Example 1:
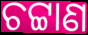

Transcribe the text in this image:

ଚଟ୍ଟାଣ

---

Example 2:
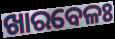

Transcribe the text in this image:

ଖାରବେଳଃ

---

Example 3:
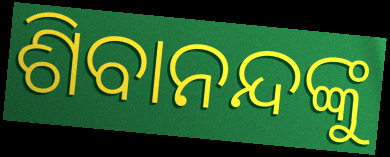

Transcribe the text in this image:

ଶିବାନନ୍ଦଙ୍କୁ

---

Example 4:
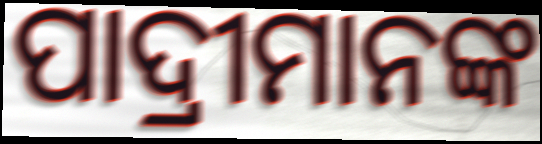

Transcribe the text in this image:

ପାଦ୍ରୀମାନଙ୍କ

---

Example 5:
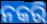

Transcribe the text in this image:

ନକରି